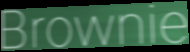
Brownie